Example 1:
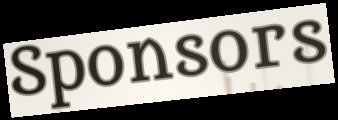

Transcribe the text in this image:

Sponsors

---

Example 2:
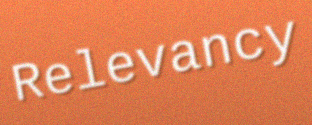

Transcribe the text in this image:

Relevancy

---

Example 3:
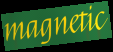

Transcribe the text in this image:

magnetic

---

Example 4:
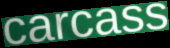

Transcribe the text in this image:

carcass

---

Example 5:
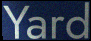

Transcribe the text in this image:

Yard